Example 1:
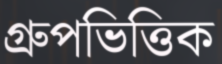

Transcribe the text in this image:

গ্রুপভিত্তিক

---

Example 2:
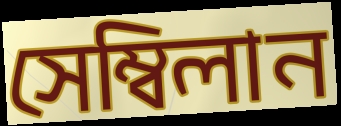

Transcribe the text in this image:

সেম্বিলান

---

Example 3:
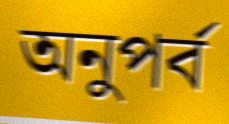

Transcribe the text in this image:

অনুপর্ব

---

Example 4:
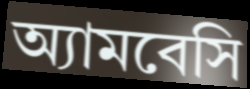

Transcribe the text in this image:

অ্যামবেসি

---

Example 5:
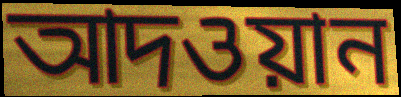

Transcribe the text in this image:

আদওয়ান